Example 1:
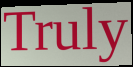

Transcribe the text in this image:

Truly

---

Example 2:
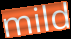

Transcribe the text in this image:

mild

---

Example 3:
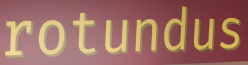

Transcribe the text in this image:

rotundus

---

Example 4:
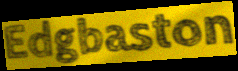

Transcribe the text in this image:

Edgbaston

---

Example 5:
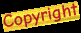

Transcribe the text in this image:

Copyright